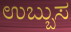
ಉಬ್ಬುಸ